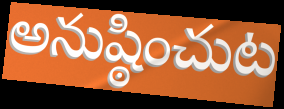
అనుష్ఠించుట